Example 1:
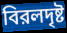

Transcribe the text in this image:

বিরলদৃষ্ট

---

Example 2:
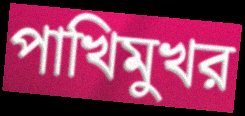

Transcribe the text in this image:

পাখিমুখর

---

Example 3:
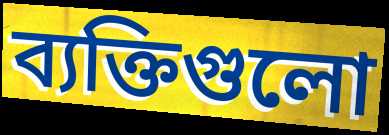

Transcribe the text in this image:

ব্যক্তিগুলো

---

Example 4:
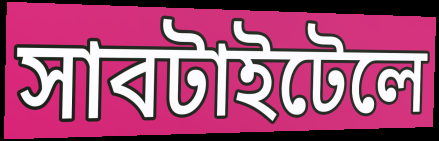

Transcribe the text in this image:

সাবটাইটেলে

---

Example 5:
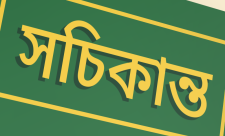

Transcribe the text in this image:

সচিকান্ত